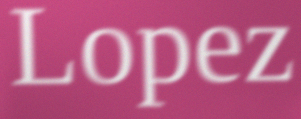
Lopez